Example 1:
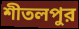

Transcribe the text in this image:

শীতলপুর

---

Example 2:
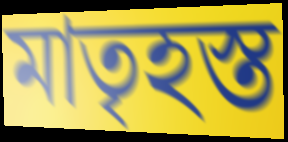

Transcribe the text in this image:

মাতৃহস্ত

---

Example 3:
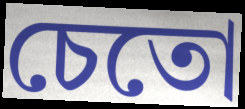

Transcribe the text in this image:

চেতো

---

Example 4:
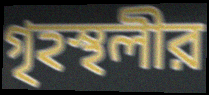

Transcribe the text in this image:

গৃহস্থলীর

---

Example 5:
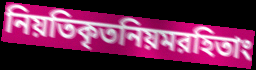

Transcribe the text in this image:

নিয়তিকৃতনিয়মরহিতাং